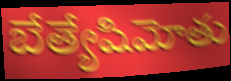
బేత్యేషిమోతు